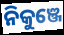
ନିକୁଞ୍ଜେ